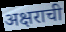
अक्षराची